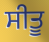
ਸੀਤੂ